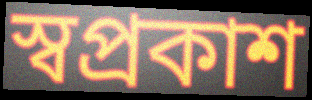
স্বপ্ৰকাশ